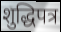
शुद्धिपत्र